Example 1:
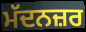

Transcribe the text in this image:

ਮੱਦਨਜ਼ਰ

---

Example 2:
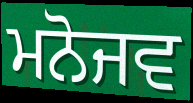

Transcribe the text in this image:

ਮਨੋਜਵ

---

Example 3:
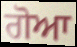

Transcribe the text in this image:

ਗੋਆ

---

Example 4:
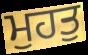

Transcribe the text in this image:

ਮੁਹਤੁ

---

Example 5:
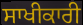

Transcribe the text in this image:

ਸਾਖੀਕਾਰੀ